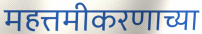
महत्तमीकरणाच्या